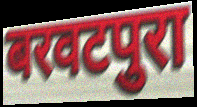
बरवटपुरा